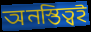
অনস্তিত্বই